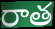
రాత